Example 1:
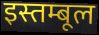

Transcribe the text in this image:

इस्तम्बूल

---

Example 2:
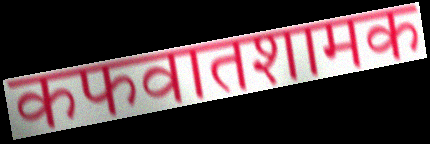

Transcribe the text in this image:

कफवातशामक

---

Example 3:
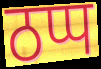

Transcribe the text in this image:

ठप्प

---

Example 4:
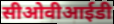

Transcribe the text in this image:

सीओवीआईडी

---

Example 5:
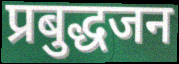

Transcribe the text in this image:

प्रबुद्धजन